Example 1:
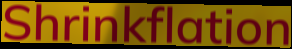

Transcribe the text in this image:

Shrinkflation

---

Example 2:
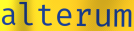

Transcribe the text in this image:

alterum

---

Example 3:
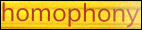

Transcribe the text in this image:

homophony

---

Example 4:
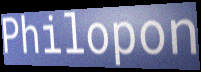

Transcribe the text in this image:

Philopon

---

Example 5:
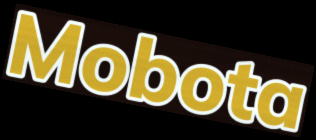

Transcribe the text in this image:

Mobota